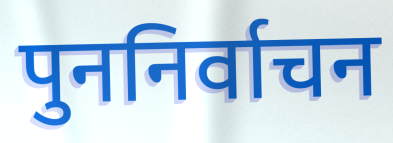
पुननिर्वाचन